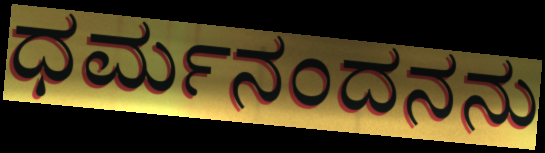
ಧರ್ಮನಂದನನು